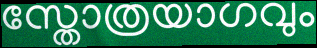
സ്തോത്രയാഗവും